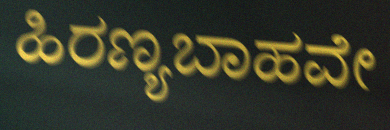
ಹಿರಣ್ಯಬಾಹವೇ